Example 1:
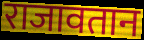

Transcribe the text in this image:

राजावतान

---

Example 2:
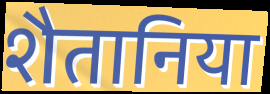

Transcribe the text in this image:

शैतानिया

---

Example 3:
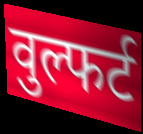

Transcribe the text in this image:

वुल्फर्ट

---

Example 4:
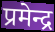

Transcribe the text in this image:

प्रमेन्द्र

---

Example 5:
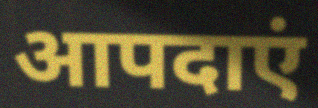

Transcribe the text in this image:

आपदाएं